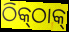
ଠିକ୍‌ଠାକ୍